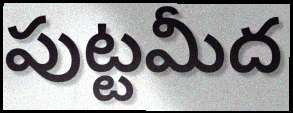
పుట్టమీద